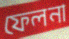
ফেলনা